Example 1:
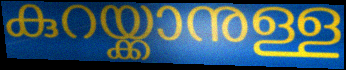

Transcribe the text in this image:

കുറയ്ക്കാനുള്ള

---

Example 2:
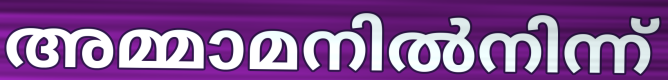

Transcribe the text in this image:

അമ്മാമനിൽനിന്ന്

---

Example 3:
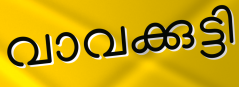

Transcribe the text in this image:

വാവക്കുട്ടി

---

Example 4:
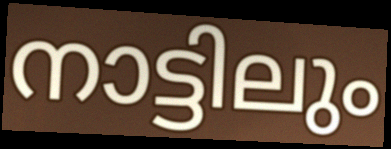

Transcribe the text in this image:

നാട്ടിലും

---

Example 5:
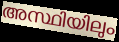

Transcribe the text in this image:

അസ്ഥിയിലും